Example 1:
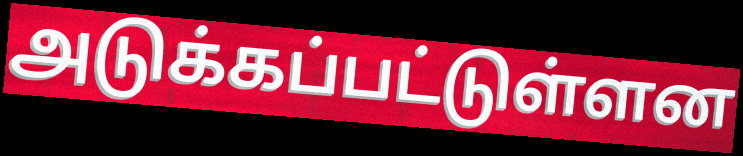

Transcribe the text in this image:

அடுக்கப்பட்டுள்ளன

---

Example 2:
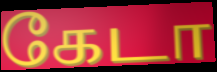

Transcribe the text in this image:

கேடா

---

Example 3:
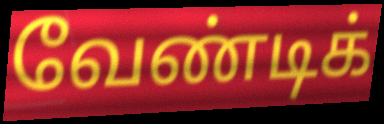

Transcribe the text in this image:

வேண்டிக்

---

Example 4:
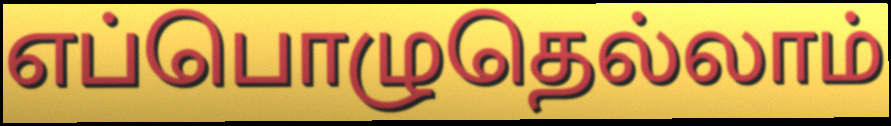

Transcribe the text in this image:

எப்பொழுதெல்லாம்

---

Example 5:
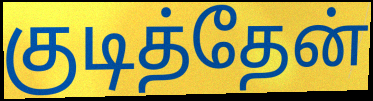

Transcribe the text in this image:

குடித்தேன்